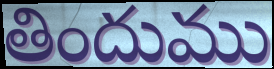
తిందుము